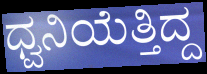
ಧ್ವನಿಯೆತ್ತಿದ್ದ